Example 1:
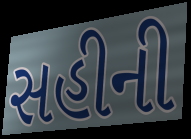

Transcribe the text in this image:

સહીની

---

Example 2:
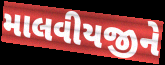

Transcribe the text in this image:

માલવીયજીને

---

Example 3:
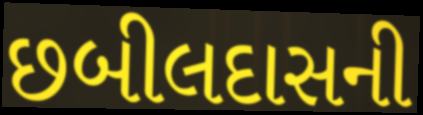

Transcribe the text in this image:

છબીલદાસની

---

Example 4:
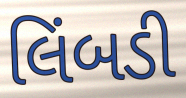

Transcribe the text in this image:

લિંબડી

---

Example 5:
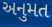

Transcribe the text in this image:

અનુમત